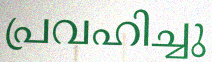
പ്രവഹിച്ചു